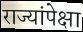
राज्यांपेक्षा